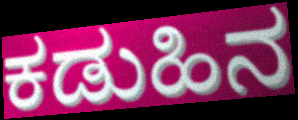
ಕಡುಹಿನ